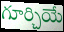
గూర్చియే